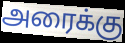
அரைக்கு